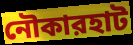
নৌকারহাট